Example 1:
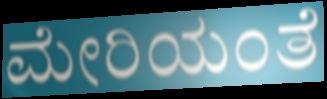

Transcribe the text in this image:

ಮೇರಿಯಂತೆ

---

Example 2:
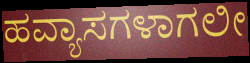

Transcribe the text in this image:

ಹವ್ಯಾಸಗಳಾಗಲೀ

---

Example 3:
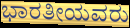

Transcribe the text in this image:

ಭಾರತೀಯವರು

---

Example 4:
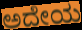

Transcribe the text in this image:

ಅದೇಯ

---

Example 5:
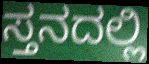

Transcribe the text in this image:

ಸ್ತನದಲ್ಲಿ